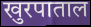
खुरपाताल